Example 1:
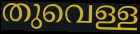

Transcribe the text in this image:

തുവെള്ള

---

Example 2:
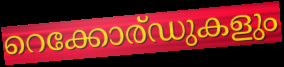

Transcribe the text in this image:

റെക്കോര്ഡുകളും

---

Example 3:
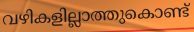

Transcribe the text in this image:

വഴികളില്ലാത്തുകൊണ്ട്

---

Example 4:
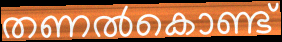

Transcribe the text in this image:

തണൽകൊണ്ട്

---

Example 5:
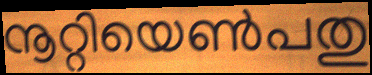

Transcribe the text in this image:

നൂറ്റിയെൺപതു